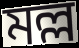
মল্ল